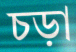
চড়া